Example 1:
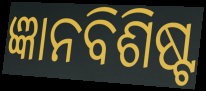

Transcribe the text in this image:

ଜ୍ଞାନବିଶିଷ୍ଟ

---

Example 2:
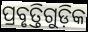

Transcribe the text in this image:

ପ୍ରବୃତ୍ତିଗୁଡ଼ିକ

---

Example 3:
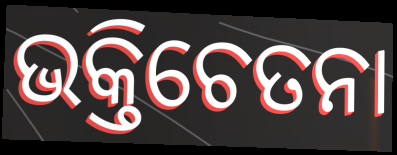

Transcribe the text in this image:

ଭକ୍ତିଚେତନା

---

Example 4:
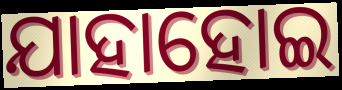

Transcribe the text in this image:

ଯାହାହୋଇ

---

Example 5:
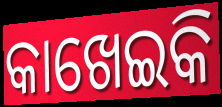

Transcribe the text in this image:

କାଖେଇକି